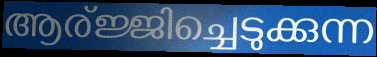
ആര്ജ്ജിച്ചെടുക്കുന്ന